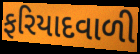
ફરિયાદવાળી